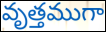
వృత్తముగా